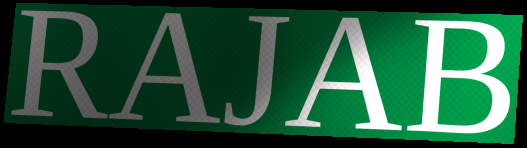
RAJAB